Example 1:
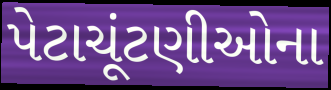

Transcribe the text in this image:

પેટાચૂંટણીઓના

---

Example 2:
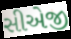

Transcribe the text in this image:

સીએજી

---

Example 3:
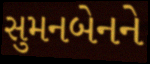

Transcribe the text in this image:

સુમનબેનને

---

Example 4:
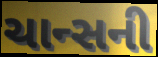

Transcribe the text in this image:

ચાન્સની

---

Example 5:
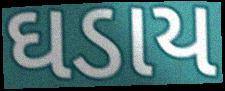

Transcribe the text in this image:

ઘડાય